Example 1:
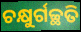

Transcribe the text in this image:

ଚକ୍ଷୁର୍ଗଚ୍ଛତି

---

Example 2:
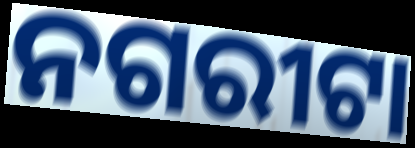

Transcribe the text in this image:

ନଗରୀଟା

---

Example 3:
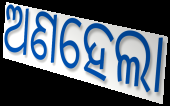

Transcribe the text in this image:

ଅଣହେଲା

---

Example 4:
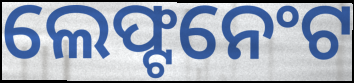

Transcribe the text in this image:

ଲେଫ୍ଟନେଂଟ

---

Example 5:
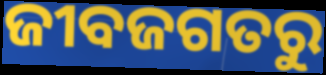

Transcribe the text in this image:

ଜୀବଜଗତରୁ